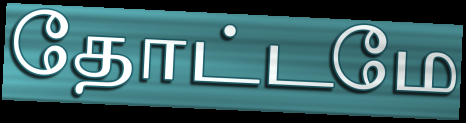
தோட்டமே